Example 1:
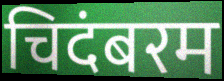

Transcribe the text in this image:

चिदंबरम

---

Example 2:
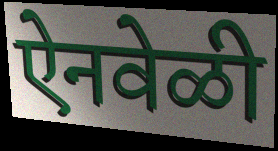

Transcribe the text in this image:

ऐनवेळी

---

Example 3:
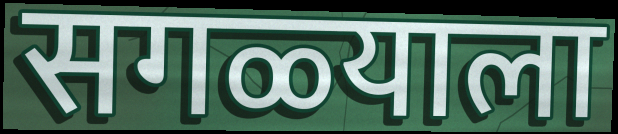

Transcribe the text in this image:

सगळ्याला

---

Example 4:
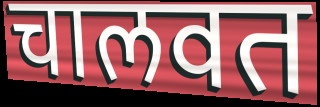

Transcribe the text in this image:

चालवत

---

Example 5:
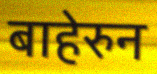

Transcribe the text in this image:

बाहेरुन